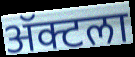
ॲक्टला